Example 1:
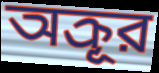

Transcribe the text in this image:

অক্রূর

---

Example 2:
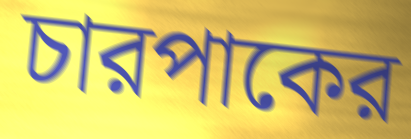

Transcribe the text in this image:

চারপাকের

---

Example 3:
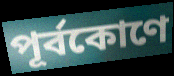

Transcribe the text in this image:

পূর্বকোণে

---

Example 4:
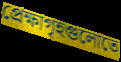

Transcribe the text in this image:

প্রেক্ষাগৃহগুলোতে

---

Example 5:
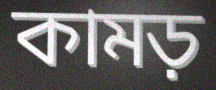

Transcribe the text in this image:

কামড়